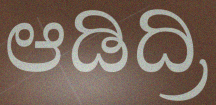
ಆಡಿದ್ರಿ